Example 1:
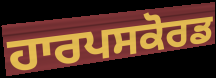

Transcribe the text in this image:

ਹਾਰਪਸਕੋਰਡ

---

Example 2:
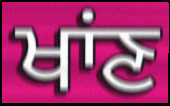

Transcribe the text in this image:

ਖਾਂਣ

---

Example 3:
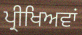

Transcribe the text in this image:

ਪ੍ਰੀਖਿਅਵਾਂ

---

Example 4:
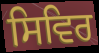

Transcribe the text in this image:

ਸਿਵਿਰ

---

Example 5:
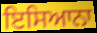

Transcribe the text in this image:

ਇਸਿਆਨਾ